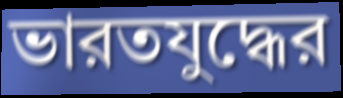
ভারতযুদ্ধের